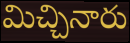
మిచ్చినారు